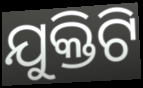
ଯୁକ୍ତିଟି